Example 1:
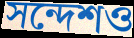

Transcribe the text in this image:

সন্দেশও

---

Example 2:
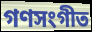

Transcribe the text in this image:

গণসংগীত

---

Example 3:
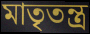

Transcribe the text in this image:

মাতৃতন্ত্র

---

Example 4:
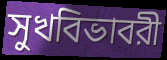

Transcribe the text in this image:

সুখবিভাবরী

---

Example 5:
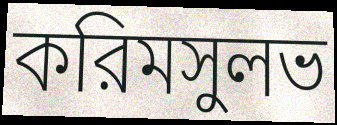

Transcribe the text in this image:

করিমসুলভ